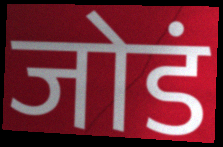
जोडं